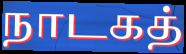
நாடகத்